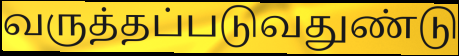
வருத்தப்படுவதுண்டு